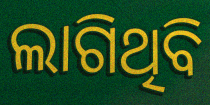
ଲାଗିଥିବି